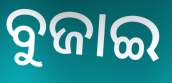
ବୁଜାଇ